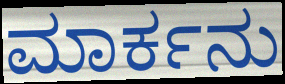
ಮಾರ್ಕನು